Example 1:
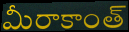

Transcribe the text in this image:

మీరాకాంత్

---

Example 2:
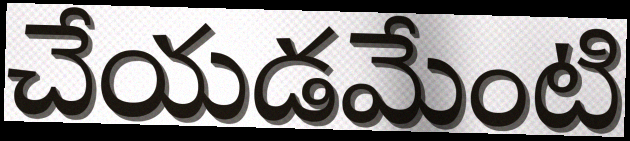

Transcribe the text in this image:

చేయడమేంటి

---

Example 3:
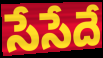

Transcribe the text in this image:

సేసేదే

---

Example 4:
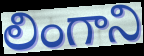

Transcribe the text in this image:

లింగాని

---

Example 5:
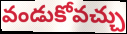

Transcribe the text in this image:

వండుకోవచ్చు